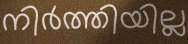
നിർത്തിയില്ല